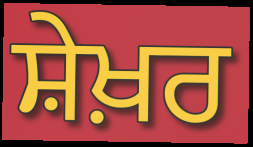
ਸ਼ੇਖ਼ਰ